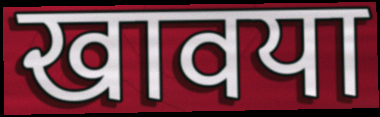
खावया